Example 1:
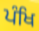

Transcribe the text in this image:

ਪੰਖਿ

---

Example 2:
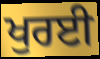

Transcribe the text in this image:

ਖੁਰਈ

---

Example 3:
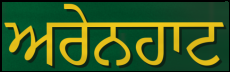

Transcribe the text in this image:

ਅਰੇਨਹਾਟ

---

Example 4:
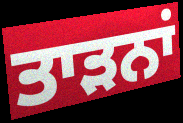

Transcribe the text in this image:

ਤਾੜਨਾਂ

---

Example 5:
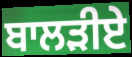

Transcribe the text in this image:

ਬਾਲੜੀਏ